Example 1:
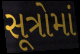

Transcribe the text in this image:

સૂત્રોમાં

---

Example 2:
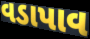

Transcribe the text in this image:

વડાપાવ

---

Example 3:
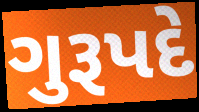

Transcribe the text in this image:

ગુરૂપદે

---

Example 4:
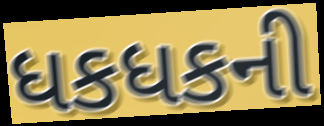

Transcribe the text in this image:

ધકધકની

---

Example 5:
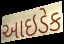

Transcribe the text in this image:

આઇડેક